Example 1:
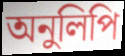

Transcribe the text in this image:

অনুলিপি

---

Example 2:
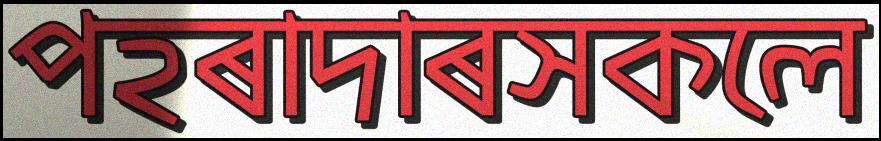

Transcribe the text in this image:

পহৰাদাৰসকলে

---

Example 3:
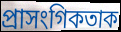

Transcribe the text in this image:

প্ৰাসংগিকতাক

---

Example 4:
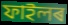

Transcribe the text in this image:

ফাইলৰ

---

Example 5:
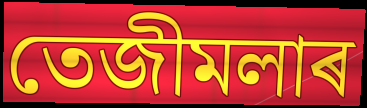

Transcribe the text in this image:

তেজীমলাৰ